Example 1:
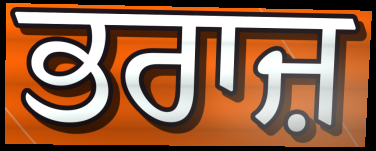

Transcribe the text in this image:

ਭਰਾਜ਼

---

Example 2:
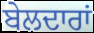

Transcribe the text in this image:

ਬੇਲਦਾਰਾਂ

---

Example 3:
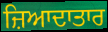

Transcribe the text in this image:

ਜ਼ਿਆਦਾਤਾਰ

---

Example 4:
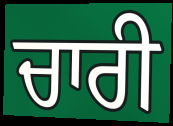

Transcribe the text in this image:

ਚਾਰੀ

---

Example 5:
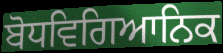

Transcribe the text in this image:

ਬੋਧਵਿਗਿਆਨਿਕ